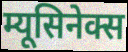
म्यूसिनेक्स